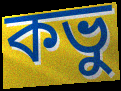
কভু